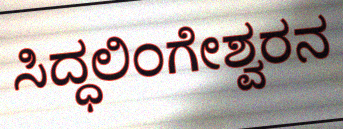
ಸಿದ್ಧಲಿಂಗೇಶ್ವರನ